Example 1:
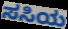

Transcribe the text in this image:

ಸಸಿಯ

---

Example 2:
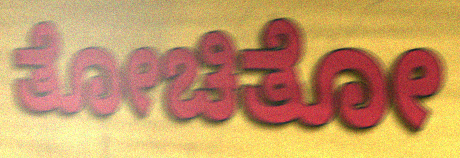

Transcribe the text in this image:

ತೋಚಿತೋ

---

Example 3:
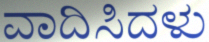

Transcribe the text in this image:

ವಾದಿಸಿದಳು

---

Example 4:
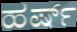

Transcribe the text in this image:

ಹರ್ಷ್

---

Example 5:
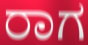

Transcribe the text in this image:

ರಾಗ